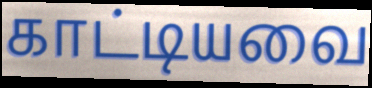
காட்டியவை